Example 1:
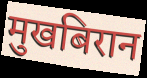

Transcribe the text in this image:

मुखबिरान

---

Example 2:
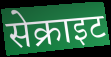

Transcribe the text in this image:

सेक्राइट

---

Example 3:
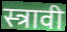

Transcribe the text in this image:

स्त्रावी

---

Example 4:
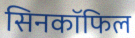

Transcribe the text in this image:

सिनकॉफिल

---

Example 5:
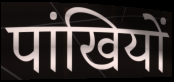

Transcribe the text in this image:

पांखियों